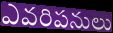
ఎవరిపనులు